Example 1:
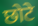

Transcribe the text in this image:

छोटे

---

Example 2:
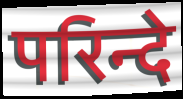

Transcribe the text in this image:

परिन्दे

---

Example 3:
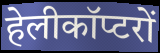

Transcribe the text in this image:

हेलीकॉप्‍टरों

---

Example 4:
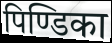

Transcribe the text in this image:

पिण्डिका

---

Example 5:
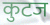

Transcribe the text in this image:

कुटज